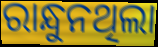
ରାନ୍ଧୁନଥିଲା